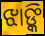
ଝାଙ୍କି